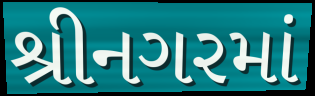
શ્રીનગરમાં